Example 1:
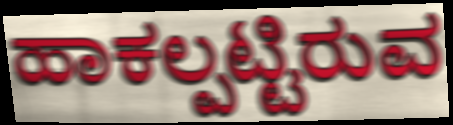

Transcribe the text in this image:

ಹಾಕಲ್ಪಟ್ಟಿರುವ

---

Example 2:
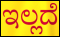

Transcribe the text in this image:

ಇಲ್ಲದೆ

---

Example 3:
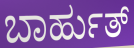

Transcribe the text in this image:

ಬಾರ್ಹುತ್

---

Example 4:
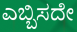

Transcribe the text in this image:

ಎಬ್ಬಿಸದೇ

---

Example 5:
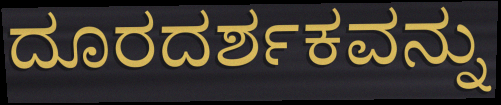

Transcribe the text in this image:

ದೂರದರ್ಶಕವನ್ನು